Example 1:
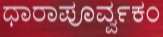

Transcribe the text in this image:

ಧಾರಾಪೂರ್ವ್ವಕಂ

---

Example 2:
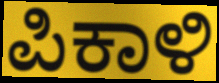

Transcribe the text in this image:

ಪಿಕಾಳಿ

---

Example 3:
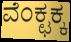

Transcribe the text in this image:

ವೆಂಕ್ಟಕ್ಕ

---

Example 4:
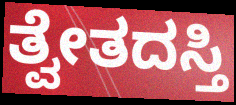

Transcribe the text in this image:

ತ್ವೇತದಸ್ತಿ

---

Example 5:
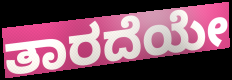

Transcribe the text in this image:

ತಾರದೆಯೇ